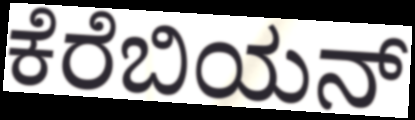
ಕೆರೆಬಿಯನ್